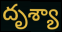
దృశ్యా